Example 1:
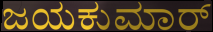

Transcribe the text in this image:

ಜಯಕುಮಾರ್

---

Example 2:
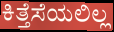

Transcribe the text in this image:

ಕಿತ್ತೆಸೆಯಲಿಲ್ಲ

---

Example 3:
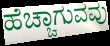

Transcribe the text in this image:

ಹೆಚ್ಚಾಗುವವು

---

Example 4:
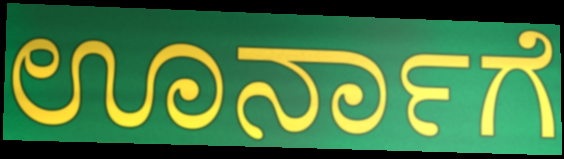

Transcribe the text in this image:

ಊರ್ನಾಗೆ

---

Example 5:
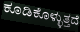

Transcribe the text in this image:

ಕೂಡಿಕೊಳ್ಳುತ್ತದೆ